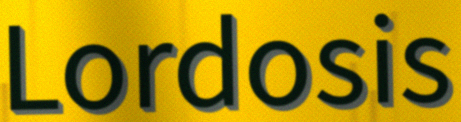
Lordosis